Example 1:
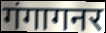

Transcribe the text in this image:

गंगागनर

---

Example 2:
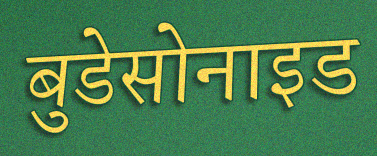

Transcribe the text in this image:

बुडेसोनाइड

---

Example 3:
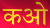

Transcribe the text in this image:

कओ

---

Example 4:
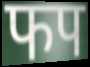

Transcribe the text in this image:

फप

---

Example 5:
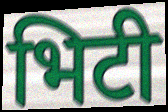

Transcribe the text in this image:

भिटी